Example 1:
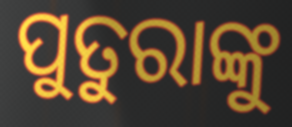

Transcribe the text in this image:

ପୁତୁରାଙ୍କୁ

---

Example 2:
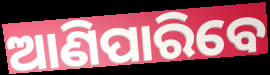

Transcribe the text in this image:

ଆଣିପାରିବେ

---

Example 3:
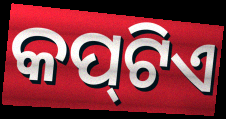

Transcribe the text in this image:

କପ୍‌ଟିଏ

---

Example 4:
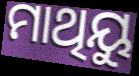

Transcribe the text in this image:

ମାଥିୟୁ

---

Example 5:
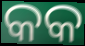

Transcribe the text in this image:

କକ